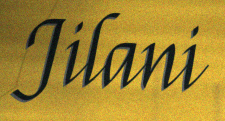
Jilani